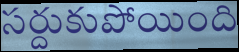
సర్దుకుపోయింది